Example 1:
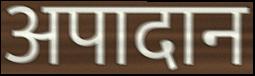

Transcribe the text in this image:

अपादान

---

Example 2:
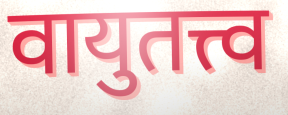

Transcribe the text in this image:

वायुतत्त्व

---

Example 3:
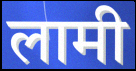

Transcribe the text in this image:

लामी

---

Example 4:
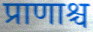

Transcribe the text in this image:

प्राणाश्च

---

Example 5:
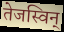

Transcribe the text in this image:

तेजस्विन्